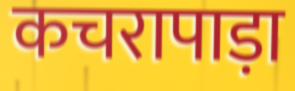
कचरापाड़ा